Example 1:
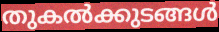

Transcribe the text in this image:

തുകൽക്കുടങ്ങൾ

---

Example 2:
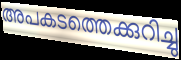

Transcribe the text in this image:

അപകടത്തെക്കുറിച്ചു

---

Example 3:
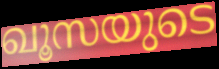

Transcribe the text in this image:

ഖൂസയുടെ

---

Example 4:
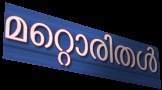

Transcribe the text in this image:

മറ്റൊരിതൾ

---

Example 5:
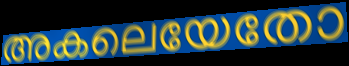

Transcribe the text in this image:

അകലെയേതോ